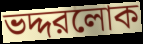
ভদ্দরলোক